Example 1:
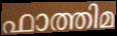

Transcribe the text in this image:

ഫാത്തിമ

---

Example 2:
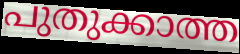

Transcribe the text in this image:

പുതുക്കാത്ത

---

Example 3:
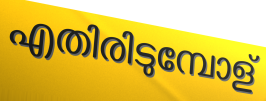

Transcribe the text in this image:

എതിരിടുമ്പോള്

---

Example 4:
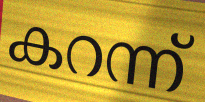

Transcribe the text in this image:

കറന്ന്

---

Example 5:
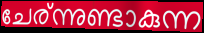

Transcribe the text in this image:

ചേര്ന്നുണ്ടാകുന്ന